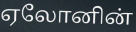
ஏலோனின்